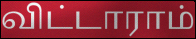
விட்டாராம்